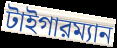
টাইগারম্যান